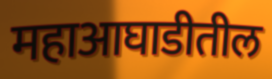
महाआघाडीतील